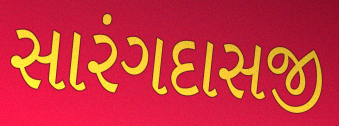
સારંગદાસજી